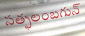
సత్ఫలంబగున్